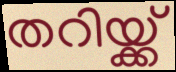
തറിയ്ക്ക്